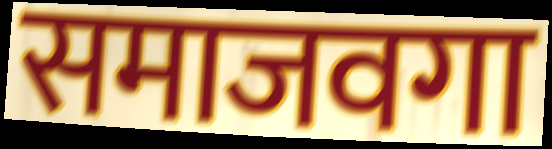
समाजवगा